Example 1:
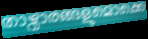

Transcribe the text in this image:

താഴ്വാരങ്ങളുമൊക്കെ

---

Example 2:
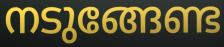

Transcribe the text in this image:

നടുങ്ങേണ്ട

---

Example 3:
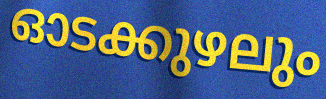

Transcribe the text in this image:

ഓടക്കുഴലും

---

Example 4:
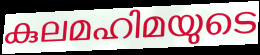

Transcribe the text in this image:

കുലമഹിമയുടെ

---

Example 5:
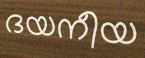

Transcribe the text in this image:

ദയനീയ